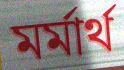
মর্মার্থ